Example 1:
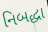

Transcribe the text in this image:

નિબદ્ધા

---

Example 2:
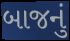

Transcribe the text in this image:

બાજનું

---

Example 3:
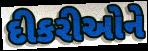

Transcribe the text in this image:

દીકરીઓને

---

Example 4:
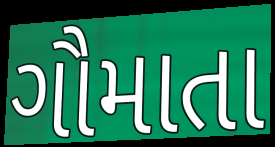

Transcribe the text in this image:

ગૌમાતા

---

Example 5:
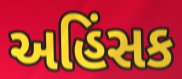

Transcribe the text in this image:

અહિંસક